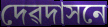
দেৱদাসনে